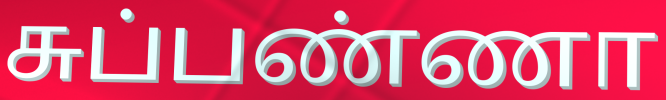
சுப்பண்ணா